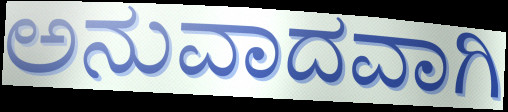
ಅನುವಾದವಾಗಿ